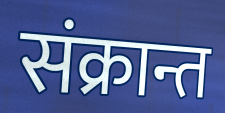
संक्रान्त